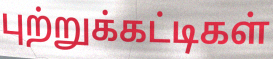
புற்றுக்கட்டிகள்